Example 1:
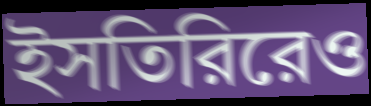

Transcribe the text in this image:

ইসতিরিরেও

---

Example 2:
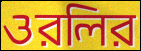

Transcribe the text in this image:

ওরলির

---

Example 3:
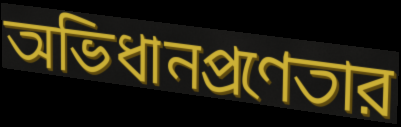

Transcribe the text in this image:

অভিধানপ্রণেতার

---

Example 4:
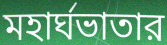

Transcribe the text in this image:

মহার্ঘভাতার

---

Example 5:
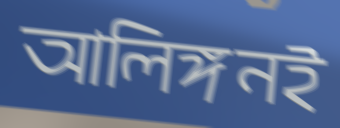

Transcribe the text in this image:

আলিঙ্গনই